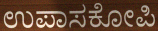
ಉಪಾಸಕೋಪಿ